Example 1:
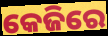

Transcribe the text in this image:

କେଜିରେ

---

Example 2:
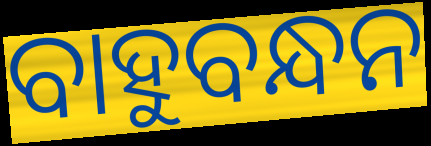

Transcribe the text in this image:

ବାହୁବନ୍ଧନ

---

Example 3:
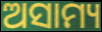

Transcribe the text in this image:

ଅସାମ୍ୟ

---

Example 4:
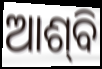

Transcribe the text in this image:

ଆଶ୍‍ବି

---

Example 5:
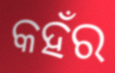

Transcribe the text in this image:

କହଁର